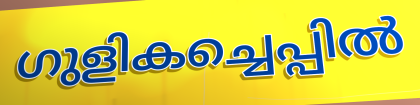
ഗുളികച്ചെപ്പിൽ